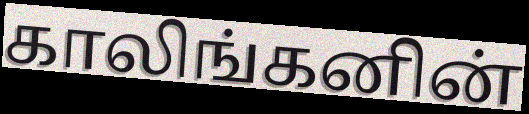
காலிங்கனின்